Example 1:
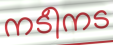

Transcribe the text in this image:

നടീനട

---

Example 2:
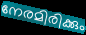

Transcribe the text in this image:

നേരമിരിക്കും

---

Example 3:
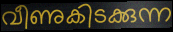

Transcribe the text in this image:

വീണുകിടക്കുന്ന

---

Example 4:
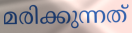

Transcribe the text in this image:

മരിക്കുന്നത്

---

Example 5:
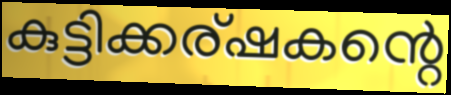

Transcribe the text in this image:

കുട്ടിക്കര്ഷകന്റെ